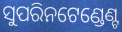
ସୁପରିନଟେଣ୍ଡେଣ୍ଟ